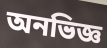
অনভিজ্ঞ